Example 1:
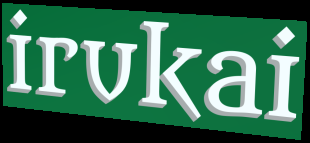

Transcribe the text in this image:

irukai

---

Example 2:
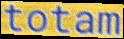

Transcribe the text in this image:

totam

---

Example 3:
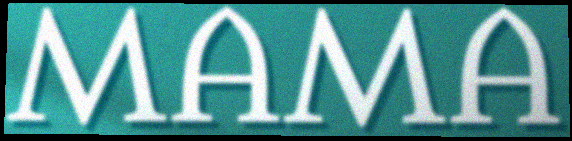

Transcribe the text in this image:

MAMA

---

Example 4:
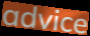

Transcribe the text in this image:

advice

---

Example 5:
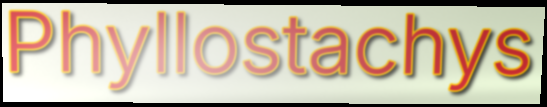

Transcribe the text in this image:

Phyllostachys